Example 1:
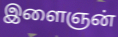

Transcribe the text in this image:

இளைஞன்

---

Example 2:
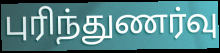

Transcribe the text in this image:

புரிந்துணர்வு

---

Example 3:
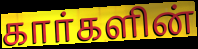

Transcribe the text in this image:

கார்களின்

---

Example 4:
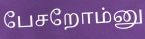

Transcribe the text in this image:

பேசறோம்னு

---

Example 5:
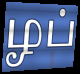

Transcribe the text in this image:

ழப்